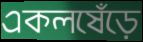
একলষেঁড়ে